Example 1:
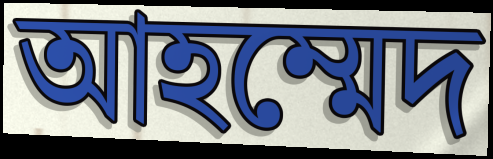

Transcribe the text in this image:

আহম্মেদ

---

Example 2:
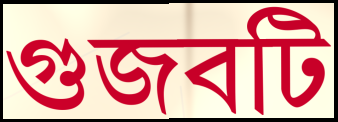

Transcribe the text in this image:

গুজবটি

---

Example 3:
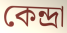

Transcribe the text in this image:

কেন্দ্রা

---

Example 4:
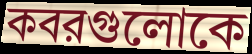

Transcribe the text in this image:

কবরগুলোকে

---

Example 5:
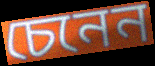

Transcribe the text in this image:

চেনেন